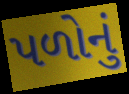
પળોનું